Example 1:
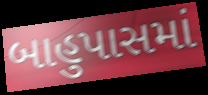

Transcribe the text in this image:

બાહુપાસમાં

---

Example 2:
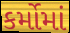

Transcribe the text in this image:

કર્મોમાં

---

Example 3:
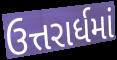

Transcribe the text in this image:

ઉત્તરાર્ધમાં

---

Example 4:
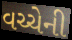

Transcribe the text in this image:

વચ્ચેની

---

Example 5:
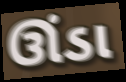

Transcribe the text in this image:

ઊંડા